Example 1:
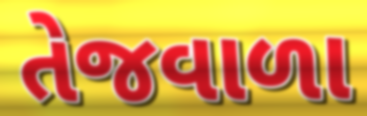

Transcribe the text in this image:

તેજવાળા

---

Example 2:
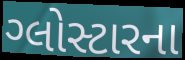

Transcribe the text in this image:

ગ્લોસ્ટારના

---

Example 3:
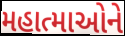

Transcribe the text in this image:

મહાત્માઓને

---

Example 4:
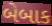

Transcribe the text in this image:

બેબાક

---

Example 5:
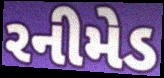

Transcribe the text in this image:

રનીમેડ